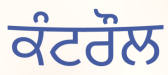
ਕੰਟਰੌਲ